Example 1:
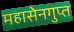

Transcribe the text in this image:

महासेनगुप्त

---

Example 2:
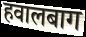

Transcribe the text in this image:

हवालबाग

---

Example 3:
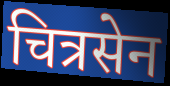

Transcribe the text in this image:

चित्रसेन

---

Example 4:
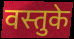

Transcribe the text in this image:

वस्तुके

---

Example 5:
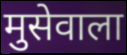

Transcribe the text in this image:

मुसेवाला